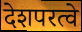
देशपरत्वे